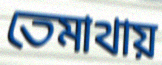
তেমাথায়